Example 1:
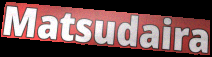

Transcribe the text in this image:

Matsudaira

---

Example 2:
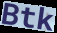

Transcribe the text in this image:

Btk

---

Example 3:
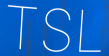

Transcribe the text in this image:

TSL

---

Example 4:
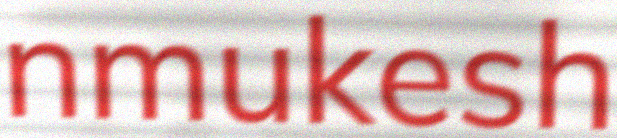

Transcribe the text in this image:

nmukesh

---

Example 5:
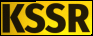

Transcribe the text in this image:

KSSR